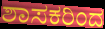
ಶಾಸಕರಿಂದ